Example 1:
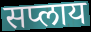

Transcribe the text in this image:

सप्लाय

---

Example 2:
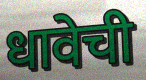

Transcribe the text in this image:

धावेची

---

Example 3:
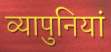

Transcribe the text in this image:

व्यापुनियां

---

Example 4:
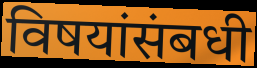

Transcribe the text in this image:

विषयांसंबधी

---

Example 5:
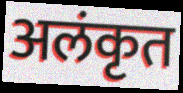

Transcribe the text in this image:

अलंकृत